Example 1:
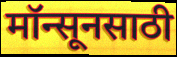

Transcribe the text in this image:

मॉन्सूनसाठी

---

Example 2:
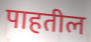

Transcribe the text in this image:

पाहतील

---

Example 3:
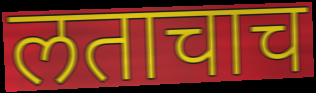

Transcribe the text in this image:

लताचाच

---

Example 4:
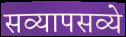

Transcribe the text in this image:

सव्यापसव्ये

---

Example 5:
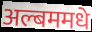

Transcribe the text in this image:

अल्बममधे